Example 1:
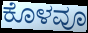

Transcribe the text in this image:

ಕೊಳವೂ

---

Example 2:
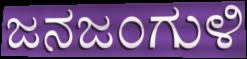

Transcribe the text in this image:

ಜನಜಂಗುಳಿ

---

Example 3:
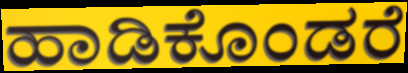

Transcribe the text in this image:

ಹಾಡಿಕೊಂಡರೆ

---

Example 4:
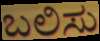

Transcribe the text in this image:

ಬಲಿಸು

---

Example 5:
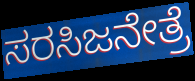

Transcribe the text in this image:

ಸರಸಿಜನೇತ್ರೆ